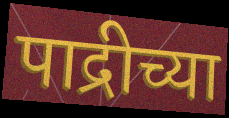
पाद्रीच्या